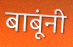
बाबूंनी